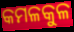
କମଳକୁଳ